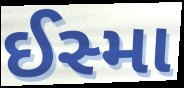
ઈસ્મા